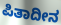
ಪಿತಾದೀನ